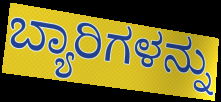
ಬ್ಯಾರಿಗಳನ್ನು